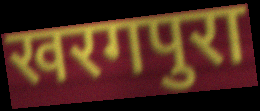
खरगपुरा